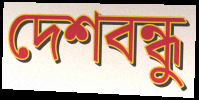
দেশবন্ধু